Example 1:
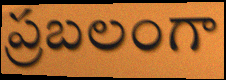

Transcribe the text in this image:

ప్రబలంగా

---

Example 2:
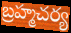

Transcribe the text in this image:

బ్రహ్మచర్య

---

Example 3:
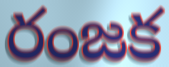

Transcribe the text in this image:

రంజక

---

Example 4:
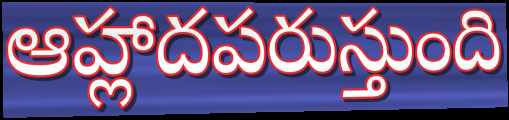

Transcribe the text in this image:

ఆహ్లాదపరుస్తుంది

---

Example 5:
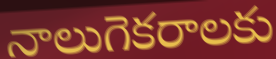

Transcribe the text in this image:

నాలుగెకరాలకు